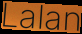
Lalan